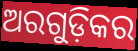
ଅରଗୁଡ଼ିକର